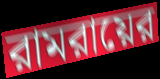
রামরায়ের